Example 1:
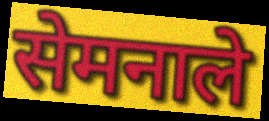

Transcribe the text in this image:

सेमनाले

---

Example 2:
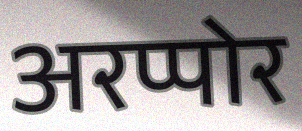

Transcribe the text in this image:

अरप्पोर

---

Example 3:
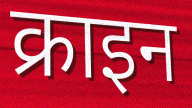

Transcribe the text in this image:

क्राइन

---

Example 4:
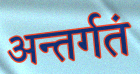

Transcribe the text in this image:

अन्तर्गतं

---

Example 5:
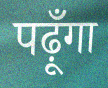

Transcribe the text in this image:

पढ़ूँगा